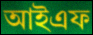
আইএফ